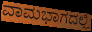
ವಾಮಭಾಗದಲ್ಲಿ